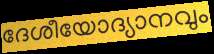
ദേശീയോദ്യാനവും